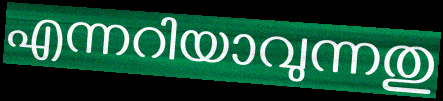
എന്നറിയാവുന്നതു